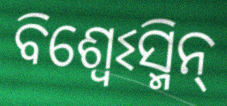
ବିଶ୍ଵେଽସ୍ମିନ୍